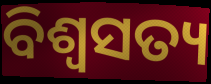
ବିଶ୍ୱସତ୍ୟ